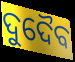
ଦୁଦୈବ